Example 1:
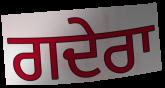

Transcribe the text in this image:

ਗਦੇਰਾ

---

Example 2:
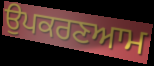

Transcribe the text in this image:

ਉਪਕਰਣਆਮ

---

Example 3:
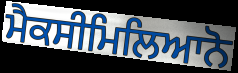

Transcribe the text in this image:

ਮੈਕਸੀਮਿਲਿਆਨੋ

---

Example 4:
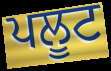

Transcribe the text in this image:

ਪਲੂਟ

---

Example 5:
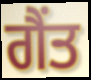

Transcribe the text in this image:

ਗੈਂਤ